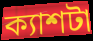
ক্যাশটা